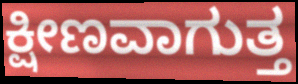
ಕ್ಷೀಣವಾಗುತ್ತ